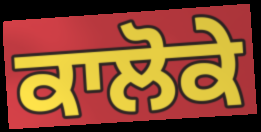
ਕਾਲੋਕੇ